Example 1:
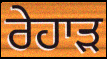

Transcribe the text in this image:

ਰੇਹਾੜ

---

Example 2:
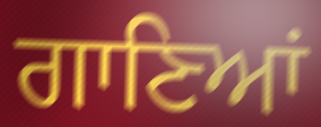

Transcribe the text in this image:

ਗਾਣਿਆਂ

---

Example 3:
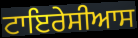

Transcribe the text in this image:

ਟਾਇਰੇਸੀਆਸ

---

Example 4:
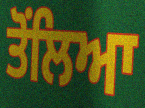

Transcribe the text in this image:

ਤੋਂਲਿਆ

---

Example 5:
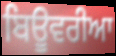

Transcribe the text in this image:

ਬਿਊਵਰੀਆ